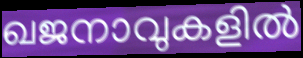
ഖജനാവുകളിൽ